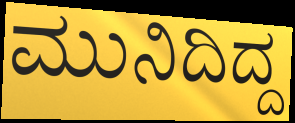
ಮುನಿದಿದ್ದ